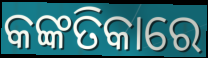
କଙ୍କତିକାରେ